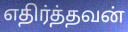
எதிர்த்தவன்